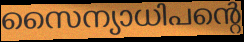
സൈന്യാധിപന്റെ